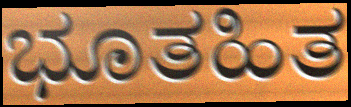
ಭೂತಹಿತ